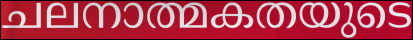
ചലനാത്മകതയുടെ